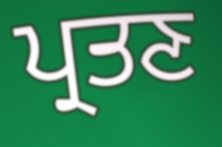
ਪ੍ਰਤਣ